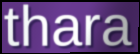
thara